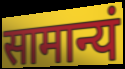
सामान्यं